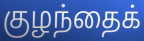
குழந்தைக்